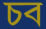
চব